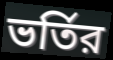
ভর্তির